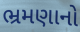
ભ્રમણાનો